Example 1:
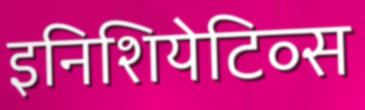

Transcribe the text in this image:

इनिशियेटिव्स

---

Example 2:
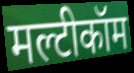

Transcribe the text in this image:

मल्टीकॉम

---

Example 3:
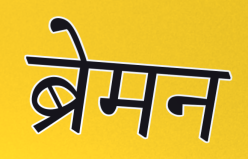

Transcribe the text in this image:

ब्रेमन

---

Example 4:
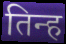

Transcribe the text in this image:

तिन्ह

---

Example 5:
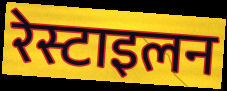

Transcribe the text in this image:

रेस्टाइलन